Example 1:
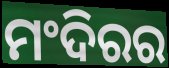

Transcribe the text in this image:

ମଂଦିରର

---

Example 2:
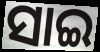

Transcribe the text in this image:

ସାଇ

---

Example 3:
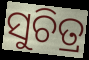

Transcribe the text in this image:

ସୁଚିତ୍ର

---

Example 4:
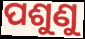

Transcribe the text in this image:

ପଶୁଣୁ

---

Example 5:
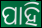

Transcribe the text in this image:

ପାହି